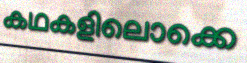
കഥകളിലൊക്കെ